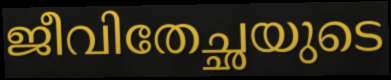
ജീവിതേച്ഛയുടെ